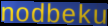
nodbeku